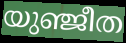
യുഞ്ജീത